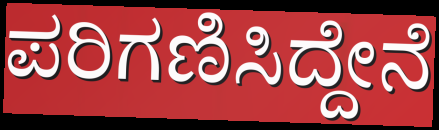
ಪರಿಗಣಿಸಿದ್ದೇನೆ